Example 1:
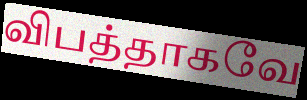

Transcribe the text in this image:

விபத்தாகவே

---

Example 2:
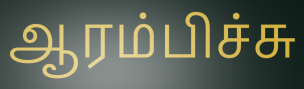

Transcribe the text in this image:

ஆரம்பிச்சு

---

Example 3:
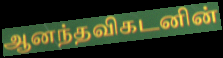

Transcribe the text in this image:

ஆனந்தவிகடனின்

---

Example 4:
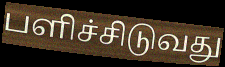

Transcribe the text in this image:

பளிச்சிடுவது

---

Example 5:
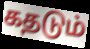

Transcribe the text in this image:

கதடும்